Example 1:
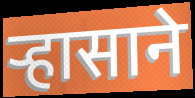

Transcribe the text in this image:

ऱ्हासाने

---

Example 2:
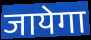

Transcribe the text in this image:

जायेगा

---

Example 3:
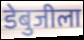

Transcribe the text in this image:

डेबुजीला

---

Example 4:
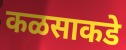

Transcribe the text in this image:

कळसाकडे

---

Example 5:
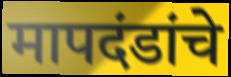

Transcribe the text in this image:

मापदंडांचे